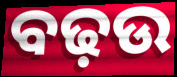
ବଢ଼ଉ